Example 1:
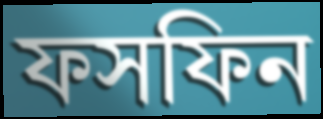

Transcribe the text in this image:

ফসফিন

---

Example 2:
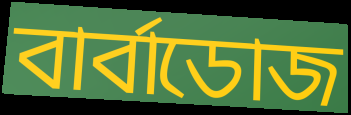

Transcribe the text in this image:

বার্বাডোজ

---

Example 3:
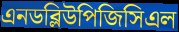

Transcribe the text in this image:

এনডব্লিউপিজিসিএল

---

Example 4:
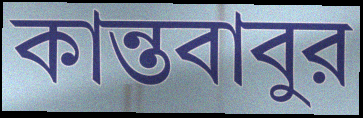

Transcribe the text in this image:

কান্তবাবুর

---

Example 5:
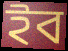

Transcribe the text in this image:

ইব